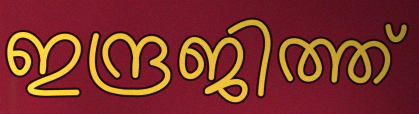
ഇന്ദ്രജിത്ത്